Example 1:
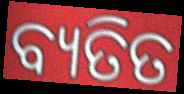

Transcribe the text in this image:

ବ୍ୟତିତ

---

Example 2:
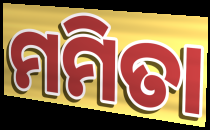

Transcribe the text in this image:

ମମିତା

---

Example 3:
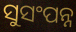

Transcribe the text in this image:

ସୁସଂପନ୍ନ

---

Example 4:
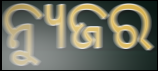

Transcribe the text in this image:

ନ୍ୟୁଜର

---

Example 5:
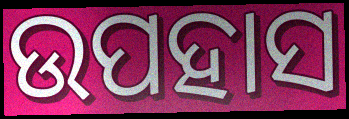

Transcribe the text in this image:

ଉପହାସ